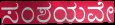
ಸಂಶಯವೇ